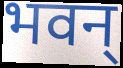
भवन्